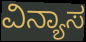
ವಿನ್ಯಾಸ